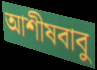
আশীষবাবু